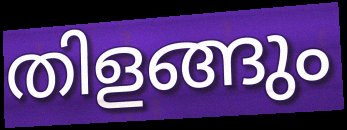
തിളങ്ങും